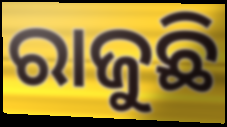
ରାଜୁଛି